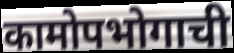
कामोपभोगाची